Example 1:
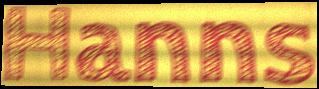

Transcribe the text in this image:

Hanns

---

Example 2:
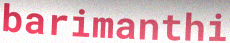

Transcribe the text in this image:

barimanthi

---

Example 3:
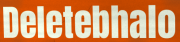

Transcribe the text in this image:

Deletebhalo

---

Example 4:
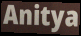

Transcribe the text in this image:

Anitya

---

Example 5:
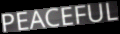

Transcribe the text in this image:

PEACEFUL